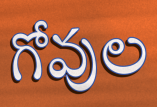
గోవుల